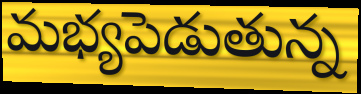
మభ్యపెడుతున్న